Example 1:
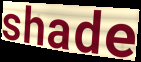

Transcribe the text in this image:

shade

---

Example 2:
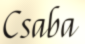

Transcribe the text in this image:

Csaba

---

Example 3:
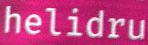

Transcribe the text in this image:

helidru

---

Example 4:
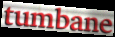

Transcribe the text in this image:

tumbane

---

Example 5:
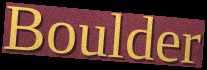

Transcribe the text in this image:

Boulder